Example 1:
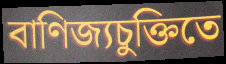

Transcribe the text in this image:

বাণিজ্যচুক্তিতে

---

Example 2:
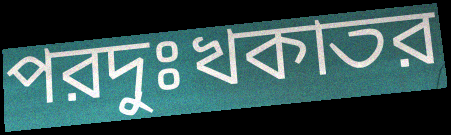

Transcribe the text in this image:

পরদুঃখকাতর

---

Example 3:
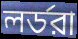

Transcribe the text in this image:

লর্ডরা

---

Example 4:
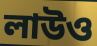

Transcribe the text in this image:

লাউও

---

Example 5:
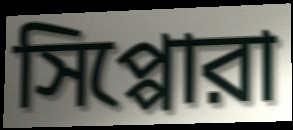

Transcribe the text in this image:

সিপ্পোরা